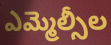
ఎమ్మెల్సీల